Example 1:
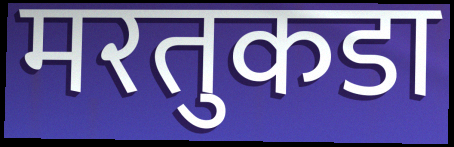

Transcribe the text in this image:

मरतुकडा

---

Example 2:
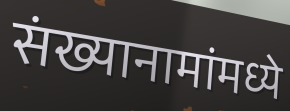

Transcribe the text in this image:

संख्यानामांमध्ये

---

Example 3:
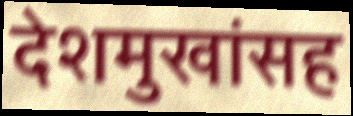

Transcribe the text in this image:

देशमुखांसह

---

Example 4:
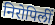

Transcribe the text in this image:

निरोपिलीं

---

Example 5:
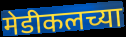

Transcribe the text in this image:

मेडीकलच्या